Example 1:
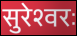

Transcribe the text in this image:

सुरेश्वरः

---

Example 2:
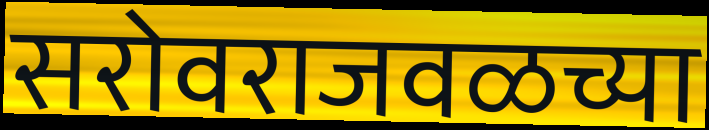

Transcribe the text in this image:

सरोवराजवळच्या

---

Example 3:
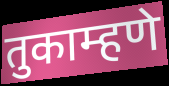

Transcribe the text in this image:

तुकाम्हणे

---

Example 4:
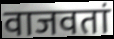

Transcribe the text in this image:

वाजवतां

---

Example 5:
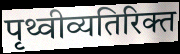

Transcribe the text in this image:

पृथ्वीव्यतिरिक्त